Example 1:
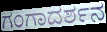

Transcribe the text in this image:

ಗಂಗಾದರ್ಶನ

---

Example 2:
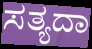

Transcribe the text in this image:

ಸತ್ಯದಾ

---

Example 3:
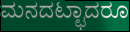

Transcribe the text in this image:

ಮನದಟ್ಟಾದರೂ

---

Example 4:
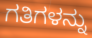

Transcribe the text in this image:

ಗತಿಗಳನ್ನು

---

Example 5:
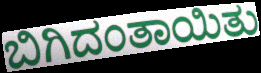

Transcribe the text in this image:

ಬಿಗಿದಂತಾಯಿತು